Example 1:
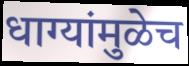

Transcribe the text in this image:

धाग्यांमुळेच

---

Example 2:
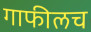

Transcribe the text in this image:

गाफीलच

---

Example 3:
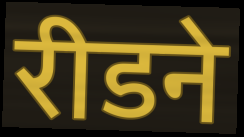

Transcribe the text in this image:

रीडने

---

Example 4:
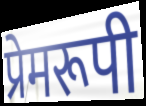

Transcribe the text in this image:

प्रेमरूपी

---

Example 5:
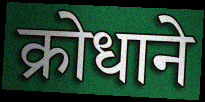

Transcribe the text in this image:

क्रोधाने